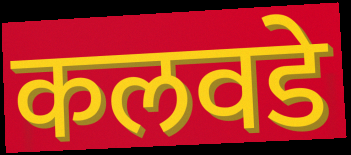
कलवडे